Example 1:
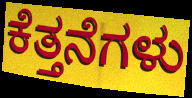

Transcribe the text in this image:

ಕೆತ್ತನೆಗಳು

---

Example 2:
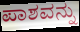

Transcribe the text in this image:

ಪಾಶವನ್ನು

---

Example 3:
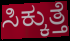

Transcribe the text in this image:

ಸಿಕ್ಕುತ್ತೆ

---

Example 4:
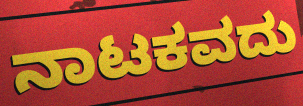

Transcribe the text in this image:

ನಾಟಕವದು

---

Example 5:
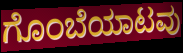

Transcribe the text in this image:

ಗೊಂಬೆಯಾಟವು